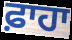
ਫ਼ਾਹਾ